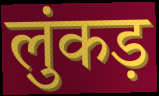
लुंकड़